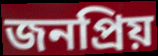
জনপ্রিয়